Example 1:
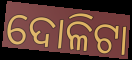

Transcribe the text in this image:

ଦୋଳିଟା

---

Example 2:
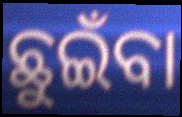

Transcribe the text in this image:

ଛୁଇଁବା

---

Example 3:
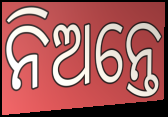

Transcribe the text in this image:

ନିଅନ୍ତେ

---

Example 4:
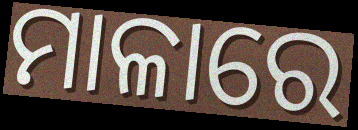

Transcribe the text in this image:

ମାଳାରେ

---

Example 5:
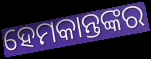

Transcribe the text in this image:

ହେମକାନ୍ତଙ୍କର